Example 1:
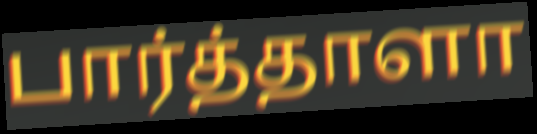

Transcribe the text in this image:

பார்த்தாளா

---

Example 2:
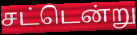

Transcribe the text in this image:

சட்டென்று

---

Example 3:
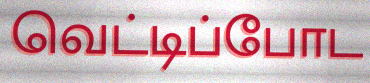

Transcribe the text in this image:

வெட்டிப்போட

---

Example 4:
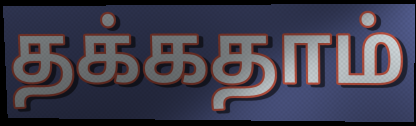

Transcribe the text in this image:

தக்கதாம்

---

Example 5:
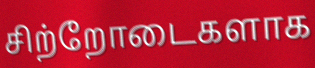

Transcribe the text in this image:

சிற்றோடைகளாக